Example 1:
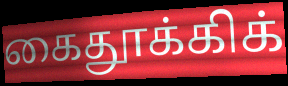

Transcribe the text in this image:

கைதூக்கிக்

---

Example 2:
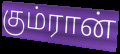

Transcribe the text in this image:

கும்ரான்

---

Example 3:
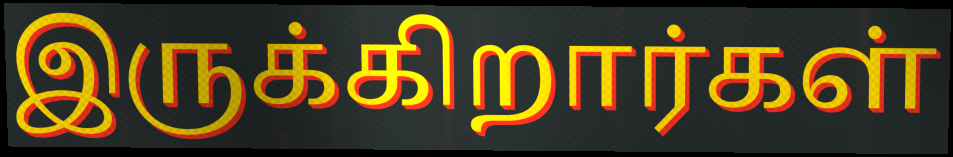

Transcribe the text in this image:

இருக்கிறார்கள்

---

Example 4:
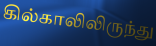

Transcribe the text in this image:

கில்காலிலிருந்து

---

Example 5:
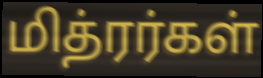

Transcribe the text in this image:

மித்ரர்கள்